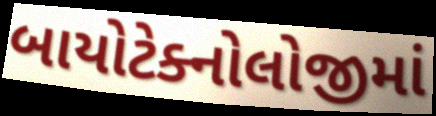
બાયોટેક્નોલોજીમાં